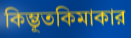
কিম্ভূতকিমাকার